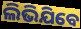
ଲିଭିଯିବେ